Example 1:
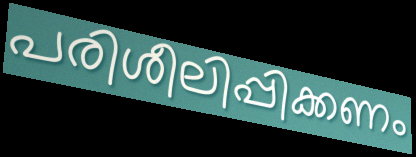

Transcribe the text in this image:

പരിശീലിപ്പിക്കണം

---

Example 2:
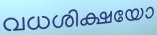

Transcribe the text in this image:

വധശിക്ഷയോ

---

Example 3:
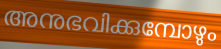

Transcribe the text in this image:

അനുഭവിക്കുമ്പോഴും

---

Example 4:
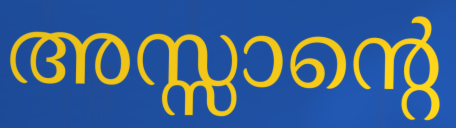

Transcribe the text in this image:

അസ്സാന്റെ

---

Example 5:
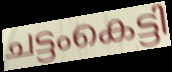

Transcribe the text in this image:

ചട്ടംകെട്ടി